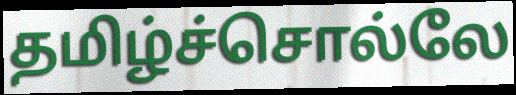
தமிழ்ச்சொல்லே